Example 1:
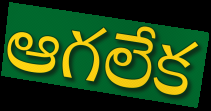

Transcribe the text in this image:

ఆగలేక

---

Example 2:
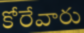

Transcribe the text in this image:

కోరేవారు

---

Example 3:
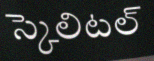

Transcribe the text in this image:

స్కెలిటల్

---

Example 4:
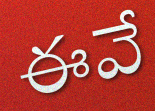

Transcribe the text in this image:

ఈవే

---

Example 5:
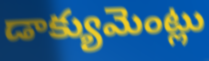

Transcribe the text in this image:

డాక్యుమెంట్లు